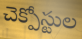
చెక్పోస్టుల